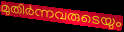
മുതിർന്നവരുടെയും